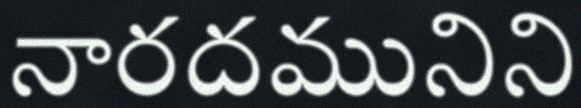
నారదమునిని